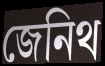
জেনিথ